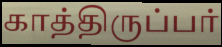
காத்திருப்பர்